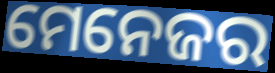
ମେନେଜର